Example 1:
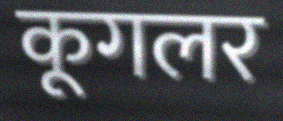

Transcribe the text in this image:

कूगलर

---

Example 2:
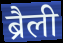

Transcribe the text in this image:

ब्रैली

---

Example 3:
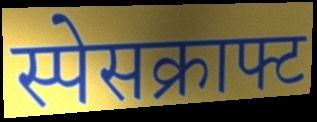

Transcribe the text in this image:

स्पेसक्राफ्ट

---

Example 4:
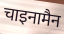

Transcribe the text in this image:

चाइनामैन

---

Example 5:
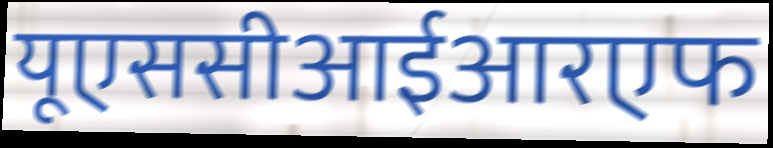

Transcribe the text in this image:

यूएससीआईआरएफ